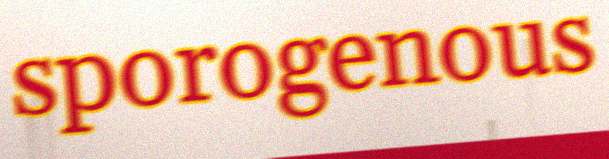
sporogenous